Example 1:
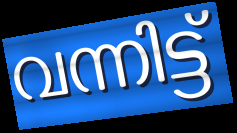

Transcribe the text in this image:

വന്നിട്ട്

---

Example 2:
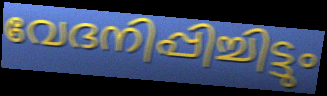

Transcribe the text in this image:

വേദനിപ്പിച്ചിട്ടും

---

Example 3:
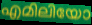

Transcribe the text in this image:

എമിലിയോ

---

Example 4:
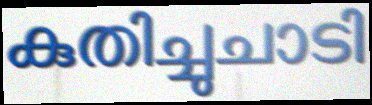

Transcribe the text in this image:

കുതിച്ചുചാടി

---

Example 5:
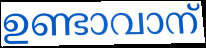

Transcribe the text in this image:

ഉണ്ടാവാന്